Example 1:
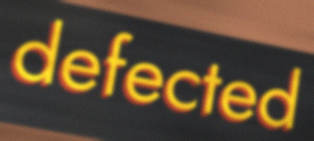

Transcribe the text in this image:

defected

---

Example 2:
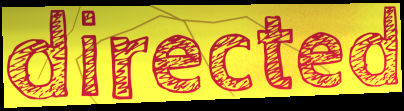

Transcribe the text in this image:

directed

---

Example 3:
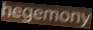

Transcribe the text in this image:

hegemony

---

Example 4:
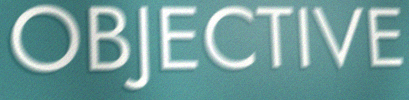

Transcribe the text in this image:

OBJECTIVE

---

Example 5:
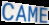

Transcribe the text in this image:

CAME